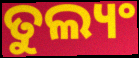
ତୁଲ୍ୟଂ